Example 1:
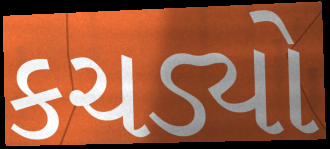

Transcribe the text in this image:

કચડ્યો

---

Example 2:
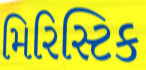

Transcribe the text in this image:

મિરિસ્ટિક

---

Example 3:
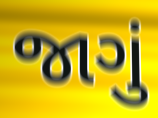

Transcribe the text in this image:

જાગું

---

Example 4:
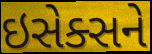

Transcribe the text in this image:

ઇસેક્સને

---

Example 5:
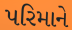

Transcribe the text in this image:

પરિમાને